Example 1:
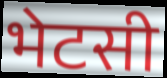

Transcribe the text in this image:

भेटसी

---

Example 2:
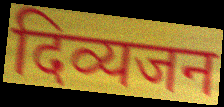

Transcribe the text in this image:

दिव्यजन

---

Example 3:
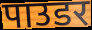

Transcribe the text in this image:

पाउडर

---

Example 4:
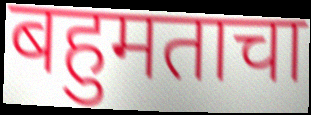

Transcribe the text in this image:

बहुमताचा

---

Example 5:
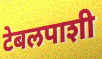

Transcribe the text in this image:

टेबलपाशी